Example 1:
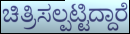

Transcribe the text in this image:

ಚಿತ್ರಿಸಲ್ಪಟ್ಟಿದ್ದಾರೆ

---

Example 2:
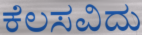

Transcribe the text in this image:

ಕೆಲಸವಿದು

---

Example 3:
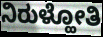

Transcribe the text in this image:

ನಿರುಳ್ಹೋತಿ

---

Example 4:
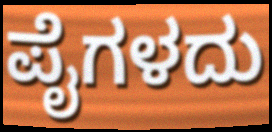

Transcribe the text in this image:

ಪೈಗಳದು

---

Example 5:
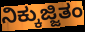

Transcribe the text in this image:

ನಿಕ್ಕುಜ್ಜಿತಂ